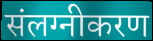
संलग्‍नीकरण